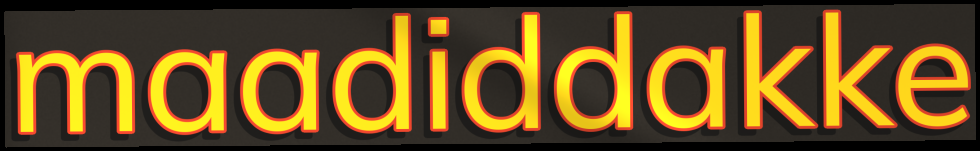
maadiddakke